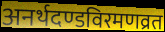
अनर्थदण्डविरमणव्रत